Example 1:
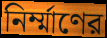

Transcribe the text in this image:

নির্ম্মাণের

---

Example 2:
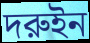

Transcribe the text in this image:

দরুইন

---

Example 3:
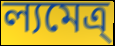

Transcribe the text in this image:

ল্যমেত্র্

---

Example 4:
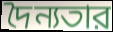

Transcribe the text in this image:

দৈন্যতার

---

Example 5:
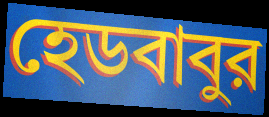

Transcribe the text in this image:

হেডবাবুর